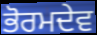
ਭੋਰਮਦੇਵ